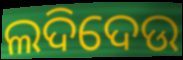
ଲଦିଦେଉ